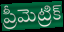
ప్రీమెట్రిక్